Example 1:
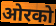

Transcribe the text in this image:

ओरको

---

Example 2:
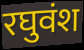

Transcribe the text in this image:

रघुवंश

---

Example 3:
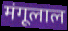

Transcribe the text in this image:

मंगूलाल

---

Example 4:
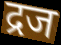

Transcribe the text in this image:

द्रज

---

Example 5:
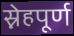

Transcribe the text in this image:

स्नेहपूर्ण